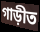
গাড়ীত